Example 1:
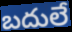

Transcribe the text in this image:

బదులే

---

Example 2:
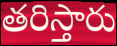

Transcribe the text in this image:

తరిస్తారు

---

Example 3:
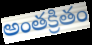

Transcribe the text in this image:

అంతక్రితం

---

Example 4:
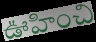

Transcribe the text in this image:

ఊహించి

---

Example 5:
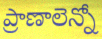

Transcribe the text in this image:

ప్రాణాలెన్నో